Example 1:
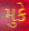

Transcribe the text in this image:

મુકે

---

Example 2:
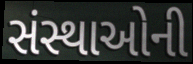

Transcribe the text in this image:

સંસ્થાઓની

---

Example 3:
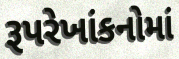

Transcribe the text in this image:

રૂપરેખાંકનોમાં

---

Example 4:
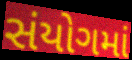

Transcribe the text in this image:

સંયોગમાં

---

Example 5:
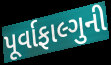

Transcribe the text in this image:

પૂર્વાફાલ્ગુની